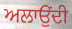
ਅਲਾਉਂਦੀ